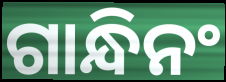
ଗାନ୍ଧିନଂ